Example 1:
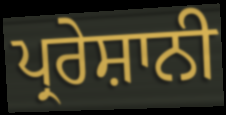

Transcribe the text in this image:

ਪ੍ਰਰੇਸ਼ਾਨੀ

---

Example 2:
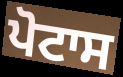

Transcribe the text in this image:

ਪੋਟਾਸ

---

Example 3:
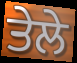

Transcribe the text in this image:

ਤੇਲੇ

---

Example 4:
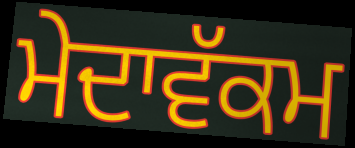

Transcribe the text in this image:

ਮੇਦਾਵੱਕਮ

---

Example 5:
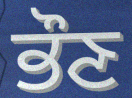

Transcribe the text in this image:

ਭੌਣ